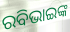
ରବିଭାଇଙ୍କ